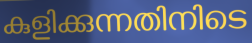
കുളിക്കുന്നതിനിടെ